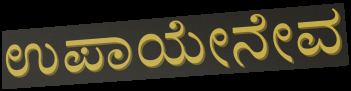
ಉಪಾಯೇನೇವ